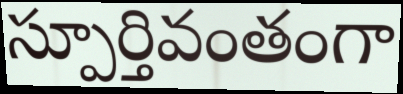
స్పూర్తివంతంగా